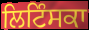
ਲਿਟਿੰਸਕਾ